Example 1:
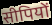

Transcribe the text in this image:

सीपियों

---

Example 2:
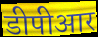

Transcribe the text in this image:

डीपीआर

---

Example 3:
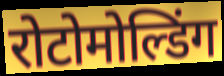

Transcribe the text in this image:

रोटोमोल्डिंग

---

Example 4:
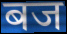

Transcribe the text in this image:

बज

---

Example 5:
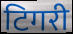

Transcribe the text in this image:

टिगरी